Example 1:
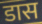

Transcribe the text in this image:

डास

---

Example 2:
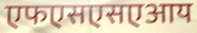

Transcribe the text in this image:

एफएसएसएआय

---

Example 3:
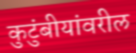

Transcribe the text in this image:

कुटुंबीयांवरील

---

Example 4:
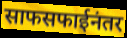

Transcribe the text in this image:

साफसफाईनंतर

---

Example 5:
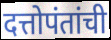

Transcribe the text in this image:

दत्तोपंतांची